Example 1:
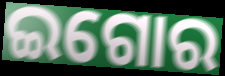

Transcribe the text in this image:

ଇଗୋର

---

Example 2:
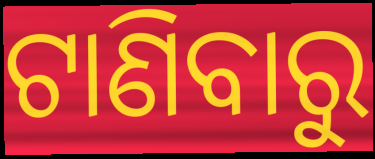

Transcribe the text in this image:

ଟାଣିବାରୁ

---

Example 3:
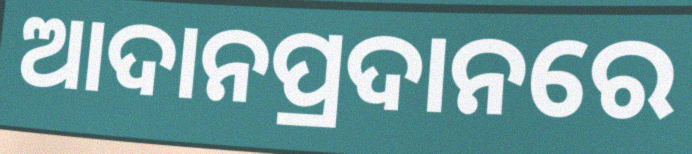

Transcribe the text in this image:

ଆଦାନପ୍ରଦାନରେ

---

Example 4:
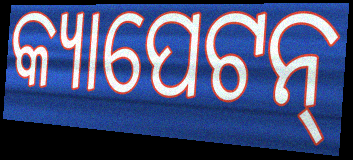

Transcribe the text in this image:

କ୍ୟାପେଟନ୍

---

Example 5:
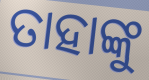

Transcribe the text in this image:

ତାହାଙ୍କୁ